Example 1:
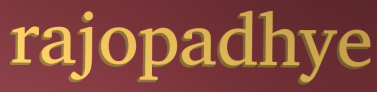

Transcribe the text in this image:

rajopadhye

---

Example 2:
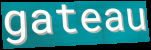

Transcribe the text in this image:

gateau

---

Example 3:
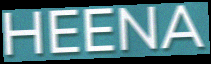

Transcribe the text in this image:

HEENA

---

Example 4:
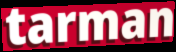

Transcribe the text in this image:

tarman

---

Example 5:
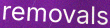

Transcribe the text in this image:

removals